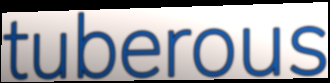
tuberous